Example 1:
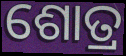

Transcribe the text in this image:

ଶୋତ୍ର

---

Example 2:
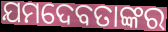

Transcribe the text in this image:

ଯମଦେବତାଙ୍କର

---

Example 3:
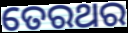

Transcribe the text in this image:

ତେରଥର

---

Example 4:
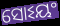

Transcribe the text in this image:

ସୋଽୟଂ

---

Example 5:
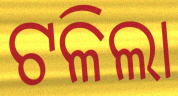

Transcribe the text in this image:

ଟଳିଲା